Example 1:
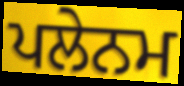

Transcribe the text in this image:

ਪਲੇਨਮ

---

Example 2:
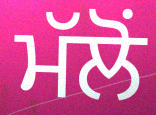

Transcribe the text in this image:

ਮੱਲੋਂ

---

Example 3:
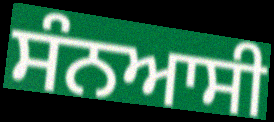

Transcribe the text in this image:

ਸੰਨਆਸੀ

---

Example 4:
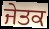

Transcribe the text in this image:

ਜੇਤਕ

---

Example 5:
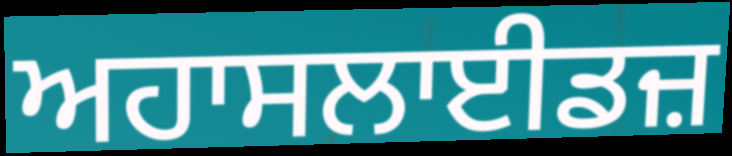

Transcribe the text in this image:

ਅਹਾਸਲਾਈਡਜ਼